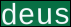
deus